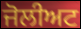
ਜੋਲੀਅਟ